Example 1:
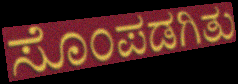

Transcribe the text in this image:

ಸೊಂಪಡಗಿತು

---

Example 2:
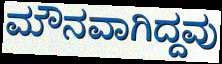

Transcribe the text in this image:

ಮೌನವಾಗಿದ್ದವು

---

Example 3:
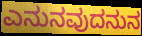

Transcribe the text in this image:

ಎನುನವುದನುನ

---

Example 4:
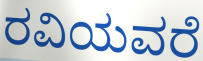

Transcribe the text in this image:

ರವಿಯವರೆ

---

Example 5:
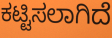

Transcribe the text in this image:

ಕಟ್ಟಿಸಲಾಗಿದೆ